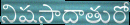
నిషసాదాతురో